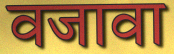
वजावा